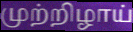
முற்றிழாய்